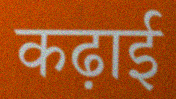
कढ़ाई